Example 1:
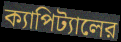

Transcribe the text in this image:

ক্যাপিট্যালের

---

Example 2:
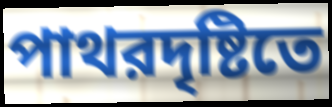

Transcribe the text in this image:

পাথরদৃষ্টিতে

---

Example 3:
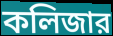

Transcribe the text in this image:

কলিজার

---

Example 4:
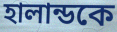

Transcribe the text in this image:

হালান্ডকে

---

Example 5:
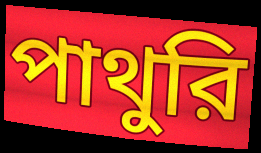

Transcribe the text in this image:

পাথুরি